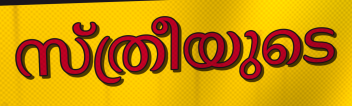
സ്ത്രീയുടെ